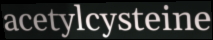
acetylcysteine